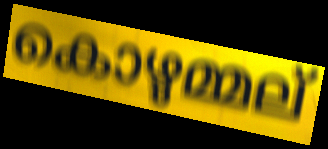
കൊഴുമ്മല്